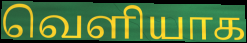
வெளியாக